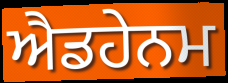
ਐਡਹੇਨਮ